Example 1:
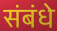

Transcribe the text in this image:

संबंधे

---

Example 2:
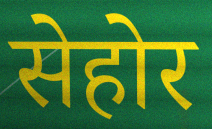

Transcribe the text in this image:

सेहोर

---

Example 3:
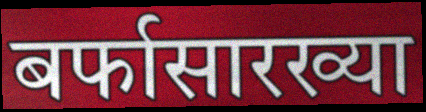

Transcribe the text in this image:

बर्फासारख्या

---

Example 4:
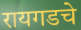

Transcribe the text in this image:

रायगडचे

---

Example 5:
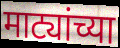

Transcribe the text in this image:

माट्यांच्या